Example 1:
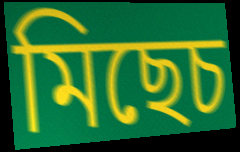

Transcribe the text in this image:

মিছেচ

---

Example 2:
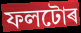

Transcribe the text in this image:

ফলটোৰ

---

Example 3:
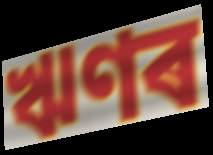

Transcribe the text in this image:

ঋণৰ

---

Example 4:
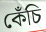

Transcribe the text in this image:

কেঁচি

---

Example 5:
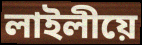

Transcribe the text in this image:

লাইলীয়ে